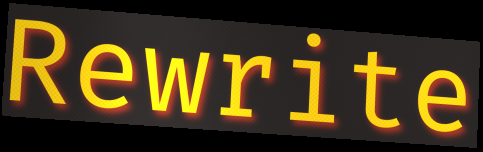
Rewrite